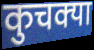
कुचक्या